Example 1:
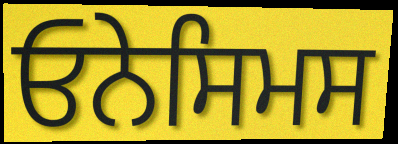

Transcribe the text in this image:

ਓਨੇਸਿਮਸ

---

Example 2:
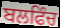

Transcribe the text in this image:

ਬਲਫਿੰਚ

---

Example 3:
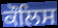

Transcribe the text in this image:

ਕੌਲਿਸ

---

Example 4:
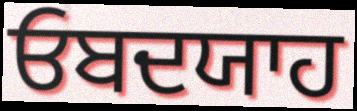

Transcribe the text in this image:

ਓਬਦਯਾਹ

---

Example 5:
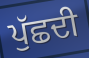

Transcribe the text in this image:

ਪੁੱਛਦੀ